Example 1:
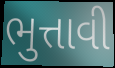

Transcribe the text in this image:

ભુત્તાવી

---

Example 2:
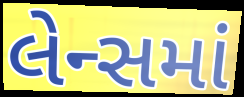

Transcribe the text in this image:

લેન્સમાં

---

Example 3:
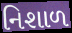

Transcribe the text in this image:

નિશાળ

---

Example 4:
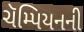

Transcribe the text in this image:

ચૅમ્પિયનની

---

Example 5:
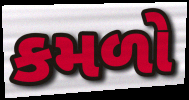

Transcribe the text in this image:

કમળો